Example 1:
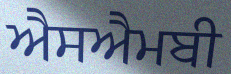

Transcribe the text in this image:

ਐਸਐਮਬੀ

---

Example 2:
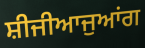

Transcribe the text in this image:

ਸ਼ੀਜੀਆਜੁਆਂਗ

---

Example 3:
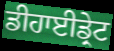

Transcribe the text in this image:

ਡੀਹਾਈਡ੍ਰੇਟ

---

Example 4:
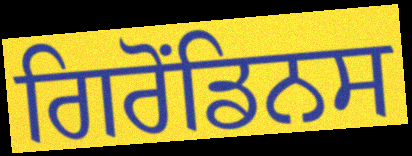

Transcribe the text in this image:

ਗਿਰੋਂਡਿਨਸ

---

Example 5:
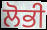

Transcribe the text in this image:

ਲੋਭੀ